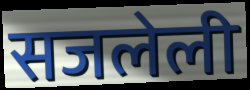
सजलेली